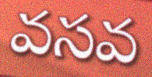
వసవ